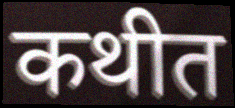
कथीत